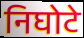
निघोटे